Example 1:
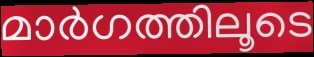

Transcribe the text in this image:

മാർഗത്തിലൂടെ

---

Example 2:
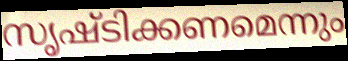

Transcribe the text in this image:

സൃഷ്ടിക്കണമെന്നും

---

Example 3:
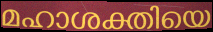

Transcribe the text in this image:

മഹാശക്തിയെ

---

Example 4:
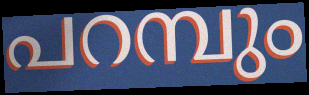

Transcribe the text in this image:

പറമ്പും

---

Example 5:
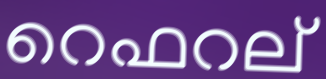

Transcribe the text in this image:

റെഫറല്